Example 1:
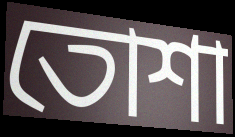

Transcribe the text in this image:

তোশা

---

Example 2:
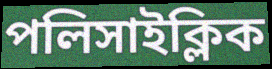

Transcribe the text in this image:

পলিসাইক্লিক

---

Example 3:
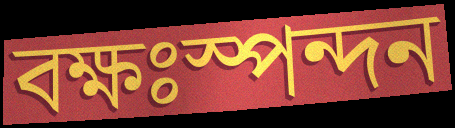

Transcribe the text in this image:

বক্ষঃস্পন্দন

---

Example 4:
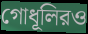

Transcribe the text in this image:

গোধূলিরও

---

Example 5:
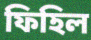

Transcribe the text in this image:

ফিহিল